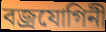
বজ্রযোগিনী